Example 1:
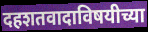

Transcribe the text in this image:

दहशतवादाविषयीच्या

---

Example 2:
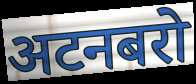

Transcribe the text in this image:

अटनबरो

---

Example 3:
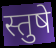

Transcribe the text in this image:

स्तुषे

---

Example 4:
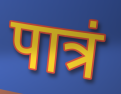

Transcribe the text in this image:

पात्रं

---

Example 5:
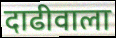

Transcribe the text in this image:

दाढीवाला